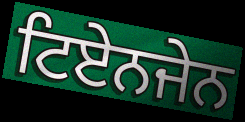
ਟਿਏਨਜੇਨ